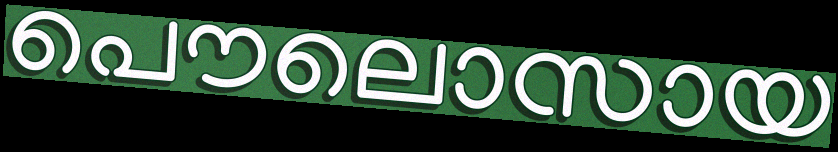
പൌലൊസായ